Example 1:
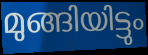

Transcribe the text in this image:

മുങ്ങിയിട്ടും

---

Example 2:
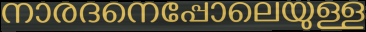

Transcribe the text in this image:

നാരദനെപ്പോലെയുള്ള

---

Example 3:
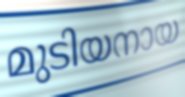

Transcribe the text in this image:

മുടിയനായ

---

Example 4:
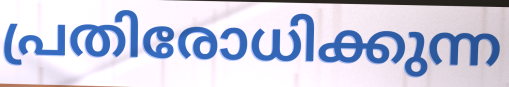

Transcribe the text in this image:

പ്രതിരോധിക്കുന്ന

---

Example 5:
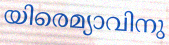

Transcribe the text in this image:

യിരെമ്യാവിനു